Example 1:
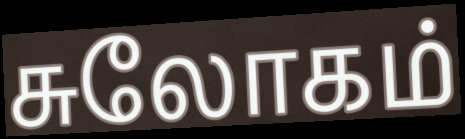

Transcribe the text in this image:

சுலோகம்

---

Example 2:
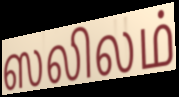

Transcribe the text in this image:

ஸலிலம்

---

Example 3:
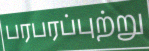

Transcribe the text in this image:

பரபரப்புற்று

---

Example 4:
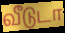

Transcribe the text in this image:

வீடுடா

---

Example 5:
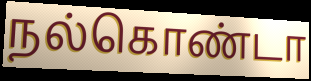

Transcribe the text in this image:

நல்கொண்டா